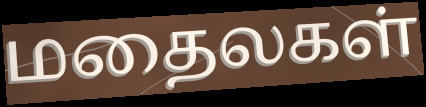
மதைலகள்